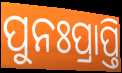
ପୁନଃପ୍ରାପ୍ତି